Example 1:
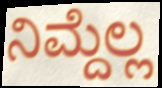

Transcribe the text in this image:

ನಿಮ್ದೆಲ್ಲ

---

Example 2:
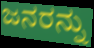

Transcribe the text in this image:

ಜನರನ್ನು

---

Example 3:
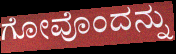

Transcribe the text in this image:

ಗೋವೊಂದನ್ನು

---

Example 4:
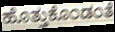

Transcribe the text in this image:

ಹೊತ್ತುಕೊಂಡಂತೆ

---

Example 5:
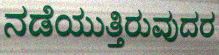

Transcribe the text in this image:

ನಡೆಯುತ್ತಿರುವುದರ